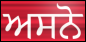
ਅਸਨੋ